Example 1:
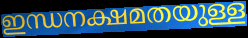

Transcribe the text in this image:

ഇന്ധനക്ഷമതയുള്ള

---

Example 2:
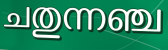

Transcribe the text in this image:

ചതുന്നഞ്ച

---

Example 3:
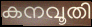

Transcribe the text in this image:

കനവൂതി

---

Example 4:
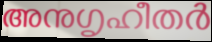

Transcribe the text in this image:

അനുഗൃഹീതർ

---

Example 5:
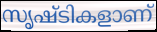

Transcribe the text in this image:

സൃഷ്ടികളാണ്